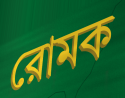
রোমক